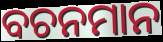
ବଚନମାନ